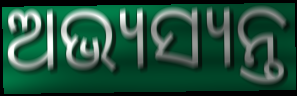
ଅଭ୍ୟସ୍ୟନ୍ତ